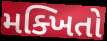
મક્ખિતો